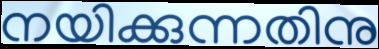
നയിക്കുന്നതിനു